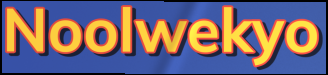
Noolwekyo